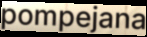
pompejana